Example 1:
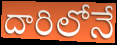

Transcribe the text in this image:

దారిలోనే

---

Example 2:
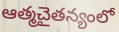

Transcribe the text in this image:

ఆత్మచైతన్యంలో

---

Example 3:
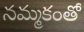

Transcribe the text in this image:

నమ్మకంతో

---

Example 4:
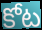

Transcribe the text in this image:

కోట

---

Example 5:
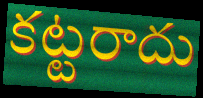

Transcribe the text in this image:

కట్టరాదు